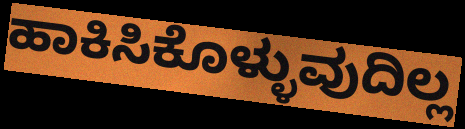
ಹಾಕಿಸಿಕೊಳ್ಳುವುದಿಲ್ಲ